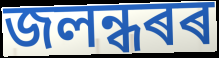
জলন্ধৰৰ